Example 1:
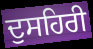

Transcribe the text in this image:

ਦੁਸਹਿਰੀ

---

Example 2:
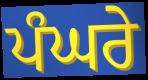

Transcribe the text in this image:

ਪੰਘਰੇ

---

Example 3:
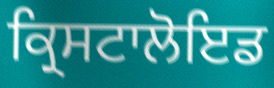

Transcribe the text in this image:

ਕ੍ਰਿਸਟਾਲੋਇਡ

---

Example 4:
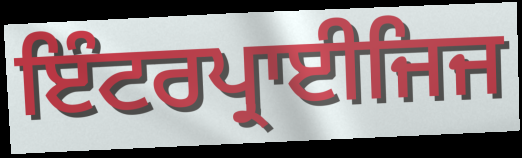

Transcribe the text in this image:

ਇੰਟਰਪ੍ਰਾਈਜਿਜ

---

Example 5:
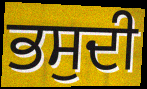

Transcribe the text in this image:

ਭਸੁਦੀ